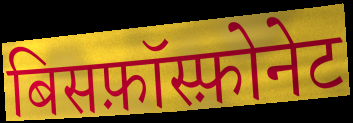
बिसफ़ॉस्फ़ोनेट